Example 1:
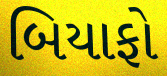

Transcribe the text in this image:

બિયાફો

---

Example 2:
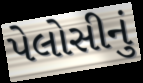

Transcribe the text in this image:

પેલોસીનું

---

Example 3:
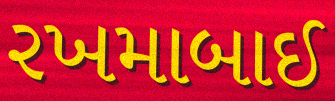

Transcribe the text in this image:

રખમાબાઈ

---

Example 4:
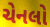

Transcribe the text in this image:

ચેનલો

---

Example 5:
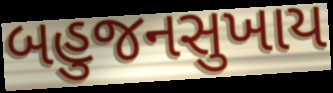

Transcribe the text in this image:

બહુજનસુખાય